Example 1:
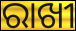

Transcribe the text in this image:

ରାଖୀ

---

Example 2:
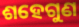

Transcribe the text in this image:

ଶହେଗୁଣ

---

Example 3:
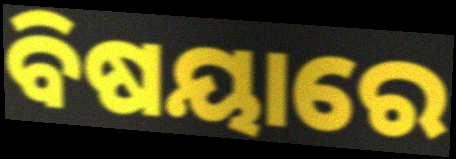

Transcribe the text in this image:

ବିଷୟାରେ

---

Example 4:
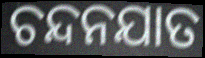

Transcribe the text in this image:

ଚନ୍ଦନଯାତ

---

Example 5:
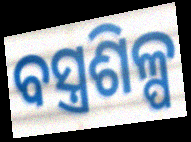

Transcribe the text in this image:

ବସ୍ତ୍ରଶିଳ୍ପ